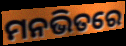
ମନଭିତରେ